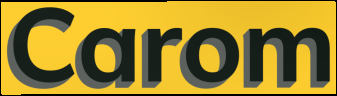
Carom